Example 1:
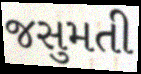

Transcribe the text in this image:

જસુમતી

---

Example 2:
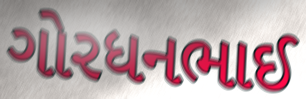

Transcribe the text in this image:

ગોરધનભાઈ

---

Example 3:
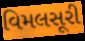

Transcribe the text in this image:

વિમલસૂરી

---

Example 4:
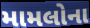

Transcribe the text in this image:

મામલોના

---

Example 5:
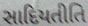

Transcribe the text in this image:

સાદિયતીતિ